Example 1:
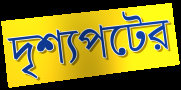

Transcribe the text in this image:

দৃশ্যপটের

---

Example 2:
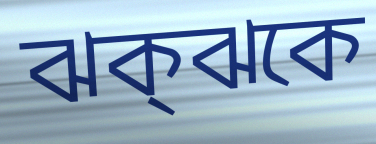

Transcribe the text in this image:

ঝক্‌ঝকে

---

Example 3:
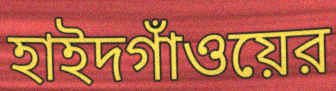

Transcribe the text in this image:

হাইদগাঁওয়ের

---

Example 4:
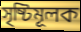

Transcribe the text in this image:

সৃষ্টিমূলক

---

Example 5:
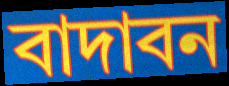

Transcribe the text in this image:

বাদাবন